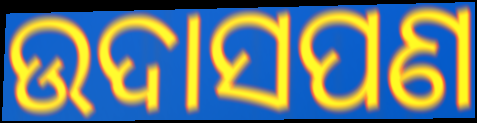
ଉଦାସପଣ